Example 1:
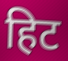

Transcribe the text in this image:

हिट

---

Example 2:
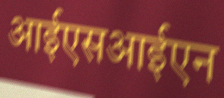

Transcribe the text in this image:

आईएसआईएन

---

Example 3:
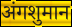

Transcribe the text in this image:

अंगशुमान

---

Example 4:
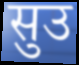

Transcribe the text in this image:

सुउ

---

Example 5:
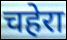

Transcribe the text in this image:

चहेरा